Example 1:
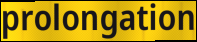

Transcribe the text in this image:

prolongation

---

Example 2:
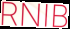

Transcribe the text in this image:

RNIB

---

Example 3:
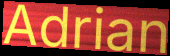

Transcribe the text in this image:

Adrian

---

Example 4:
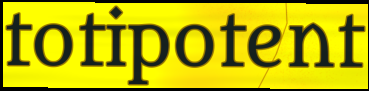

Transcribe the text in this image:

totipotent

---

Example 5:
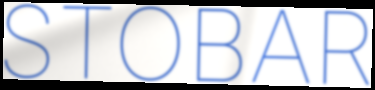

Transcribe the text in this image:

STOBAR